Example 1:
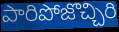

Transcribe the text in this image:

పారిపోజొచ్చిరి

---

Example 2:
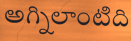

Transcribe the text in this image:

అగ్నిలాంటిది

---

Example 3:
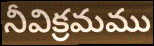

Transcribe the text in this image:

నీవిక్రమము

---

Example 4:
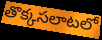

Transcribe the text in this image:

తొక్కసలాటలో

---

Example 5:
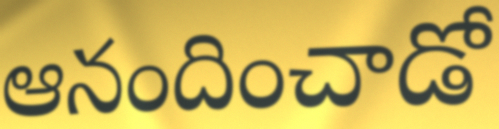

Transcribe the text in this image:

ఆనందించాడో